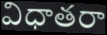
విధాతరా